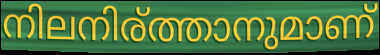
നിലനിര്ത്താനുമാണ്